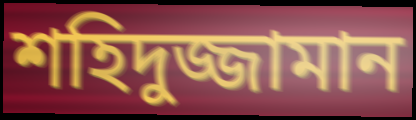
শহিদুজ্জামান